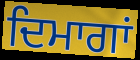
ਦਿਮਾਗਾਂ